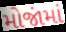
મોજાંમાં